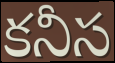
కనీస